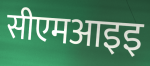
सीएमआइइ